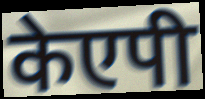
केएपी